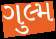
ગુલ્મ